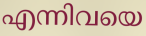
എന്നിവയെ